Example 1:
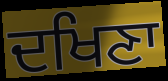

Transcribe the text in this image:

ਦਖਿਣਾ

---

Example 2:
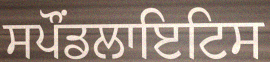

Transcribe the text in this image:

ਸਪੌਂਡਲਾਇਟਿਸ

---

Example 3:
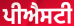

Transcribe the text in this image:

ਪੀਐਸਟੀ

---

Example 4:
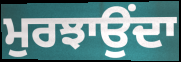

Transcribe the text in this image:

ਮੁਰਝਾਉਂਦਾ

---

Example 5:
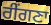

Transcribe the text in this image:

ਰੀਂਗਣਾ